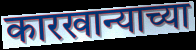
कारखान्याच्या